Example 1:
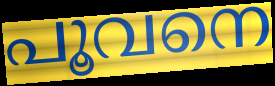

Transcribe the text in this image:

പൂവനെ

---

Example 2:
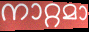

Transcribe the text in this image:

നാറ്റമാ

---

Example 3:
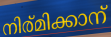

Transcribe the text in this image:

നിര്മിക്കാന്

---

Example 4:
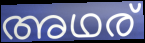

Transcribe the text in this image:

അഥര്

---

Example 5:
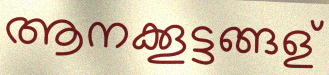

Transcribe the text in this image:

ആനക്കൂട്ടങ്ങള്